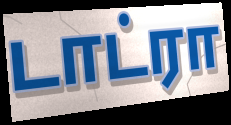
டாட்ரா